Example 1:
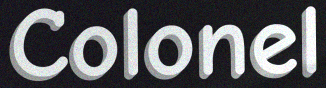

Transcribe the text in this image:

Colonel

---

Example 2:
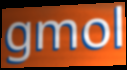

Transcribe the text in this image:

gmol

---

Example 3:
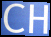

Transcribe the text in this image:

CH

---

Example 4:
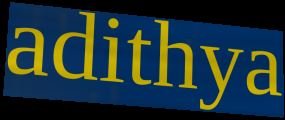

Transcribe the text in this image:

adithya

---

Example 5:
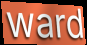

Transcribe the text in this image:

ward